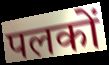
पलकों